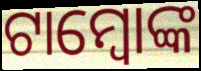
ଟାମ୍ବୋଙ୍କ